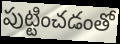
పుట్టించడంతో